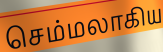
செம்மலாகிய